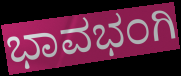
ಭಾವಭಂಗಿ